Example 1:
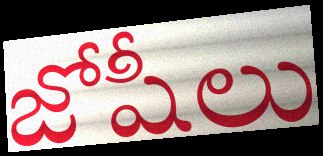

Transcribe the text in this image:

జోషీలు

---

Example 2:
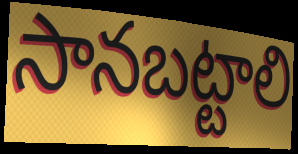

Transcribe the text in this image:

సానబట్టాలి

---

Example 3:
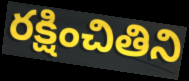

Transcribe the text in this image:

రక్షించితిని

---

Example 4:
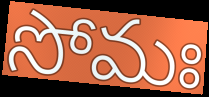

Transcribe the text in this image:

సోమః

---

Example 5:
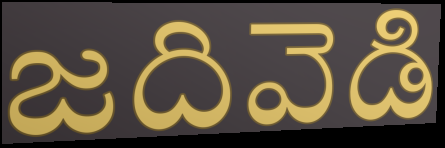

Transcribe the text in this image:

జదివెడి